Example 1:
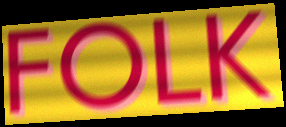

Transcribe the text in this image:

FOLK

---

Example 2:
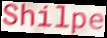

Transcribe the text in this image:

Shilpe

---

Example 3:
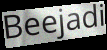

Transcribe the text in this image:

Beejadi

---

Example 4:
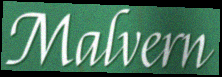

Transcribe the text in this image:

Malvern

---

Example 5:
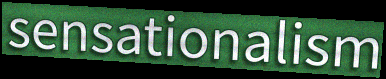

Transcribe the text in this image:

sensationalism